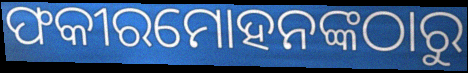
ଫକୀରମୋହନଙ୍କଠାରୁ